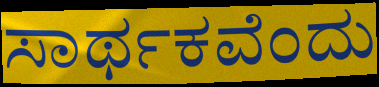
ಸಾರ್ಥಕವೆಂದು